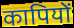
कापियों